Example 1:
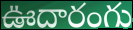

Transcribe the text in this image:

ఊదారంగు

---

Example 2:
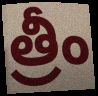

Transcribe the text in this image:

త్రీం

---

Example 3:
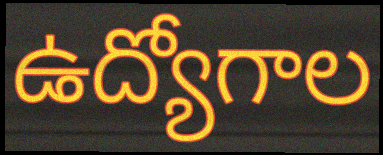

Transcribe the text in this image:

ఉద్యోగాల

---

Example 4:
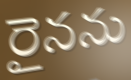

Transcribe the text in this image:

రైనను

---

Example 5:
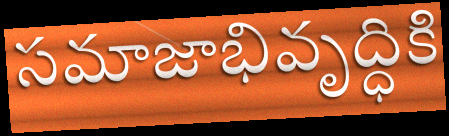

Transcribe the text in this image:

సమాజాభివృద్ధికి